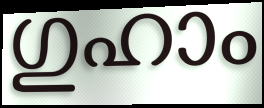
ഗുഹാം